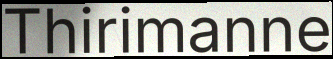
Thirimanne